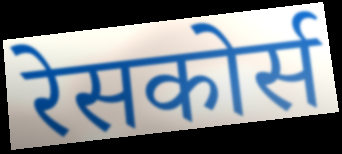
रेसकोर्स